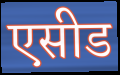
एसीड